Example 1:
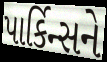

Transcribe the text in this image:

પાર્કિન્સને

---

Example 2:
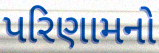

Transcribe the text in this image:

પરિણામનો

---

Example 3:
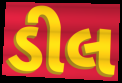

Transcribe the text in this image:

ડીલ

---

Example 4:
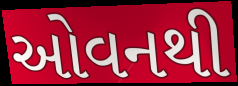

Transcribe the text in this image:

ઓવનથી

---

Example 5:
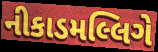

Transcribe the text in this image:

નીકાડમલ્લિગે